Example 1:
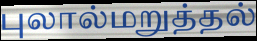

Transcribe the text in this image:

புலால்மறுத்தல்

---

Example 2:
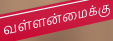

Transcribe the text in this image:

வள்ளன்மைக்கு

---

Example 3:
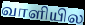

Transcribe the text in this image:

வாளியில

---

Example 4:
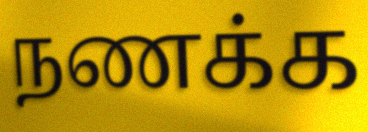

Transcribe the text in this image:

நணக்க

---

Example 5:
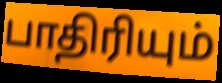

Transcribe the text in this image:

பாதிரியும்